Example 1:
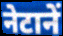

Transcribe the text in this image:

नेटानें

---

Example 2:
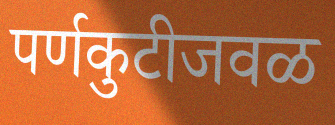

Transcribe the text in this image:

पर्णकुटीजवळ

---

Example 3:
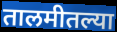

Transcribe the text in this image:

तालमीतल्या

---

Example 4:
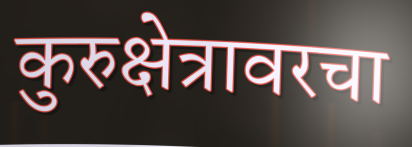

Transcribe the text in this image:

कुरुक्षेत्रावरचा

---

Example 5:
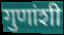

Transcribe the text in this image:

गुणांशी